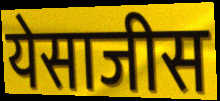
येसाजीस